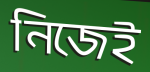
নিজেই